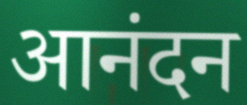
आनंदन